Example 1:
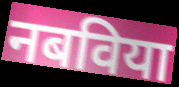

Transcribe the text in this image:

नबविया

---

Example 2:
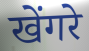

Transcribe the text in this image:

खेंगरे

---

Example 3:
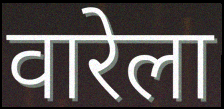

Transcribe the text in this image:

वारेला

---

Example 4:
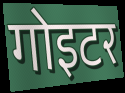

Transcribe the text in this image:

गोइटर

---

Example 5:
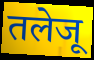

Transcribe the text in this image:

तलेजू